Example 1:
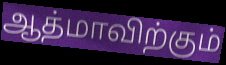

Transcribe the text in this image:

ஆத்மாவிற்கும்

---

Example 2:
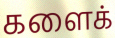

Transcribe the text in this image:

களைக்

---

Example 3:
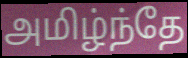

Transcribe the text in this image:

அமிழ்ந்தே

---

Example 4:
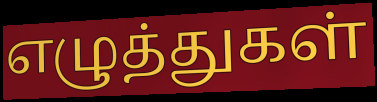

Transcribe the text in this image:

எழுத்துகள்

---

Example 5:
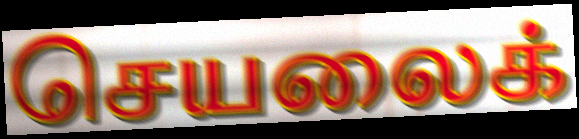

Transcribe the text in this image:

செயலைக்